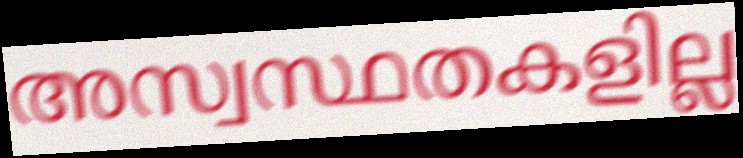
അസ്വസ്ഥതകളില്ല